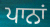
ਪਾਨਾਂ